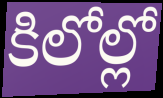
కిలోల్లో